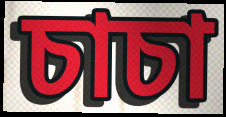
চাচা